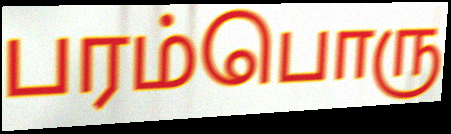
பரம்பொரு